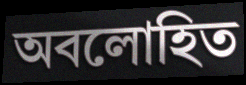
অবলোহিত